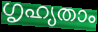
ഗൃഹ്യതാം